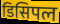
डिसिपल